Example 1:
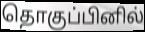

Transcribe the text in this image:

தொகுப்பினில்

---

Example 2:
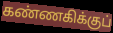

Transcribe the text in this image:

கண்ணகிக்குப்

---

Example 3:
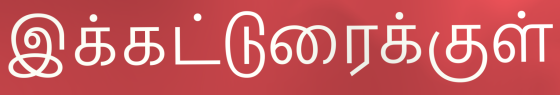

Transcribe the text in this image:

இக்கட்டுரைக்குள்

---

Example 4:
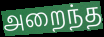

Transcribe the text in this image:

அறைந்த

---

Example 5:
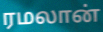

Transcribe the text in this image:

ரமலான்